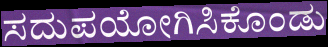
ಸದುಪಯೋಗಿಸಿಕೊಂಡು